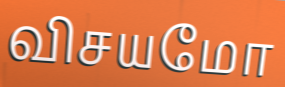
விசயமோ